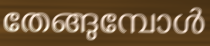
തേങ്ങുമ്പോൾ